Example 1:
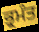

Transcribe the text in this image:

ਭ੍ਰਮੰਤ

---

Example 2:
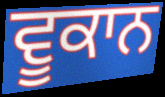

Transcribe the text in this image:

ਵੂਕਾਨ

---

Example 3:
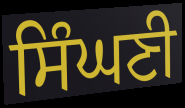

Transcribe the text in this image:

ਸਿੰਘਣੀ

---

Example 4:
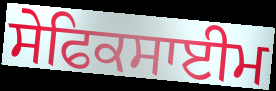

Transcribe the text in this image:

ਸੇਫਿਕਸਾਈਮ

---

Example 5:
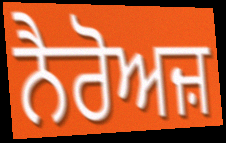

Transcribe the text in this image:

ਨੈਰੋਅਜ਼